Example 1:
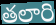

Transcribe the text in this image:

తలారి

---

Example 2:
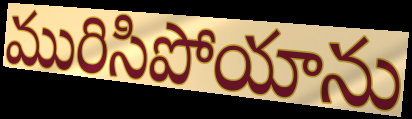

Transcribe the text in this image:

మురిసిపోయాను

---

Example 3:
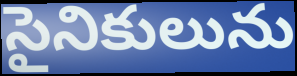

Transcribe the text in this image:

సైనికులును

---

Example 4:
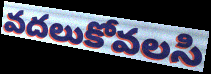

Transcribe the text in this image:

వదలుకోవలసి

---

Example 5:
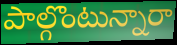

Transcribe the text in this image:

పాల్గొంటున్నారా